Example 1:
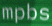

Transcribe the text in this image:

mpbs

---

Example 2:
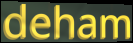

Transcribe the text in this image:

deham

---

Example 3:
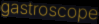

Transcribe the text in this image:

gastroscope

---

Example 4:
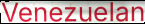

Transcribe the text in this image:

Venezuelan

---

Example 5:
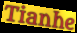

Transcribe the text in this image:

Tianhe